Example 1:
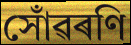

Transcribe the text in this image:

সোঁৱৰণি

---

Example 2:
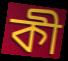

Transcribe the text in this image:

কী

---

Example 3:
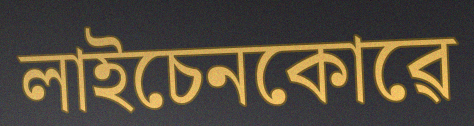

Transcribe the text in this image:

লাইচেনকোৱে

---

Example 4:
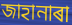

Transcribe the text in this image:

জাহানাৰা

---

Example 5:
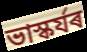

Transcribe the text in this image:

ভাস্কৰ্যৰ